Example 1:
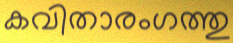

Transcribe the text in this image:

കവിതാരംഗത്തു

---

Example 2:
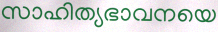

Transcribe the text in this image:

സാഹിത്യഭാവനയെ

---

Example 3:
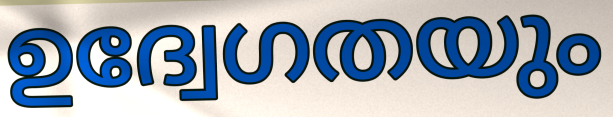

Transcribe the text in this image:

ഉദ്വേഗതയും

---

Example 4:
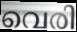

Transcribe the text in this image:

വെരി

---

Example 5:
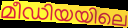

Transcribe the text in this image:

മീഡിയയിലെ